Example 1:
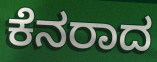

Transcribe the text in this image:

ಕೆನರಾದ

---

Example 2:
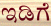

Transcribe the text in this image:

ಇಡಿಗೆ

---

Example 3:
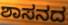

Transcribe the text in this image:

ಶಾಸನದ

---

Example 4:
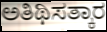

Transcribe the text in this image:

ಅತಿಥಿಸತ್ಕಾರ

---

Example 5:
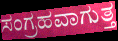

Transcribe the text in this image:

ಸಂಗ್ರಹವಾಗುತ್ತ